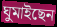
ঘুমাইছেন